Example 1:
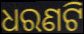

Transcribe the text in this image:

ଧରଣଟି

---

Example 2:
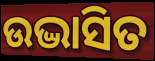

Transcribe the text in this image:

ଉଦ୍ଭାସିତ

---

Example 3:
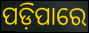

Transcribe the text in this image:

ପଡ଼ିପାରେ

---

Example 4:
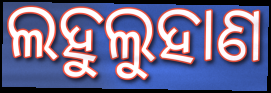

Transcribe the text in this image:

ଲହୁଲୁହାଣ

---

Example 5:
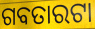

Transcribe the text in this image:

ଗବତାରଟା